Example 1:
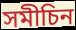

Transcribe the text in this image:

সমীচিন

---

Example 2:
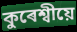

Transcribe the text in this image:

কুৰেশ্বীয়ে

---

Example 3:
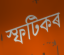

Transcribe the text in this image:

স্ফটিকৰ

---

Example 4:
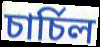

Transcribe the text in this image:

চাৰ্চিল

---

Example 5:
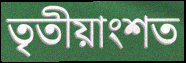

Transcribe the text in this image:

তৃতীয়াংশত